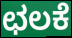
ಛಲಕೆ